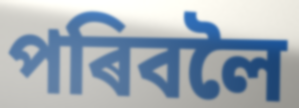
পৰিবলৈ